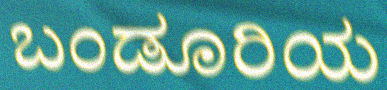
ಬಂಡೂರಿಯ